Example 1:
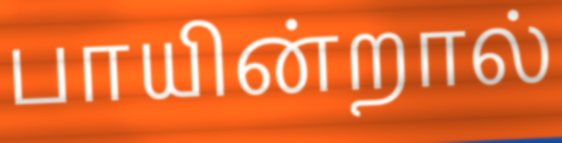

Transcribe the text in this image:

பாயின்றால்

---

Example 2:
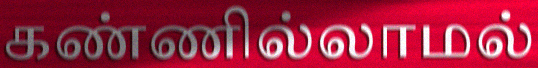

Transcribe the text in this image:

கண்ணில்லாமல்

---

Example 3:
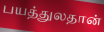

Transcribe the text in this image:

பயத்துலதான்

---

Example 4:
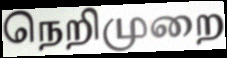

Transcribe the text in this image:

நெறிமுறை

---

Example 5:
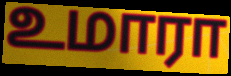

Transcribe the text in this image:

உமாரா